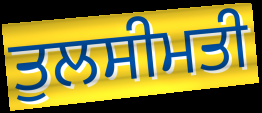
ਤੁਲਸੀਮਤੀ